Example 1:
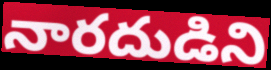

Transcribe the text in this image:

నారదుడిని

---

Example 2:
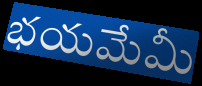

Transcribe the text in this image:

భయమేమీ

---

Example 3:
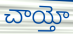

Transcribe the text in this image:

చాయ్తో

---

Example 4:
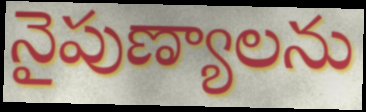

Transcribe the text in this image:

నైపుణ్యాలను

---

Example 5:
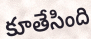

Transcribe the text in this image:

కూతేసింది